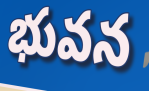
భువన